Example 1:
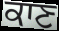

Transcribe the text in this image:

ਕਾਣ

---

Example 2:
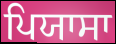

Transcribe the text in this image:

ਪਿਯਾਸਾ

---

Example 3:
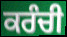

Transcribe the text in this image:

ਕਰੰਚੀ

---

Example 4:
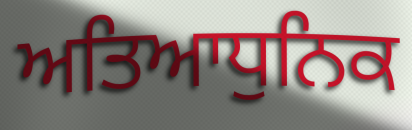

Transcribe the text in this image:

ਅਤਿਆਧੁਨਿਕ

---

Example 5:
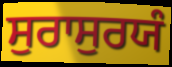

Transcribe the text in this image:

ਸੁਰਾਸੁਰਯੰ